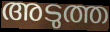
അടുത്ത